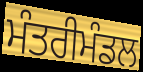
ਮੰਤਰੀਮੰਡਲ